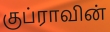
குப்ராவின்